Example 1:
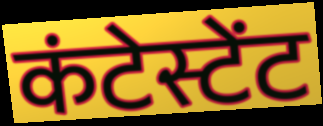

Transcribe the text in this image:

कंटेस्‍टेंट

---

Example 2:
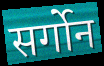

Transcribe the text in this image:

सर्गोन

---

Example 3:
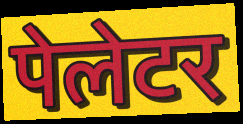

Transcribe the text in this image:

पेलेटर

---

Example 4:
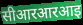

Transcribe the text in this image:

सीआरआरआइ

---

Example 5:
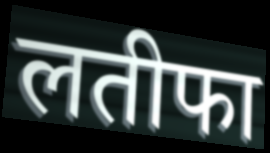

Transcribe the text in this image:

लतीफा